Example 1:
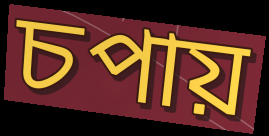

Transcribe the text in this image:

চপায়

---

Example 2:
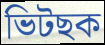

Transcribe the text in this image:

ভিটছক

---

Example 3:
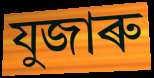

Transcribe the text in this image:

যুজাৰু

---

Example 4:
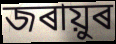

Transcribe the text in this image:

জৰায়ুৰ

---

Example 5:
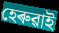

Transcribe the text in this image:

হেৰুৱাই